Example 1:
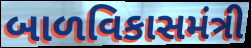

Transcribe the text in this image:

બાળવિકાસમંત્રી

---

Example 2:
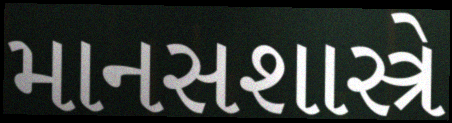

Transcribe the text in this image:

માનસશાસ્ત્રે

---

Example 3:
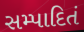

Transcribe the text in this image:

સમ્પાદિતં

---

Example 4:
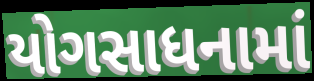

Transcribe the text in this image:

યોગસાધનામાં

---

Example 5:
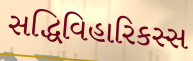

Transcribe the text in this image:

સદ્ધિવિહારિકસ્સ